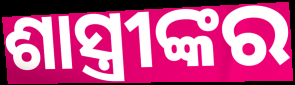
ଶାସ୍ତ୍ରୀଙ୍କର